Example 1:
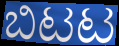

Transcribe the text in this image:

ಬಿಟಟ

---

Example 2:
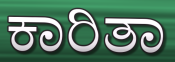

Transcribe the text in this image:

ಕಾರಿತಾ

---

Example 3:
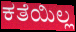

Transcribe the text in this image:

ಕತೆಯಿಲ್ಲ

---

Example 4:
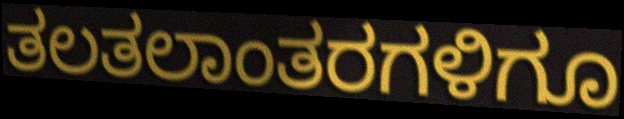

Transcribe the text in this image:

ತಲತಲಾಂತರಗಳಿಗೂ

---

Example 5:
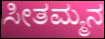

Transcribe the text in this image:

ಸೀತಮ್ಮನ